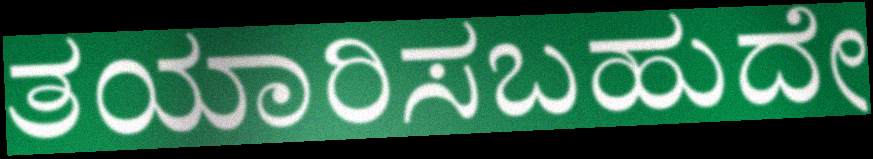
ತಯಾರಿಸಬಹುದೇ